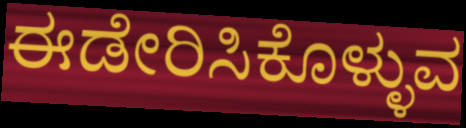
ಈಡೇರಿಸಿಕೊಳ್ಳುವ